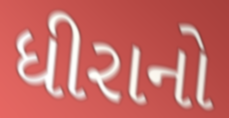
ધીરાનો